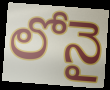
లోనై